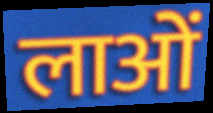
लाओं